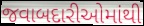
જવાબદારીઓમાંથી